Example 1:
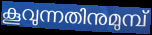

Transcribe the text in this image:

കൂവുന്നതിനുമുമ്പ്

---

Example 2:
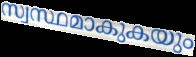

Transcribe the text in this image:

സ്വസ്ഥമാകുകയും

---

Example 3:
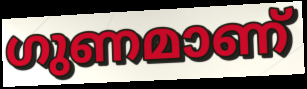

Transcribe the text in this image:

ഗുണമാണ്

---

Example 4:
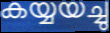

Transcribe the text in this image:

കയ്യയച്ചു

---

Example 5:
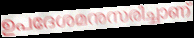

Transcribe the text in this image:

ഉപദേശമനുസരിച്ചാണ്